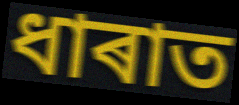
ধাৰাত